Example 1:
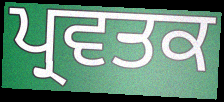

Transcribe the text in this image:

ਪ੍ਰਵਤਕ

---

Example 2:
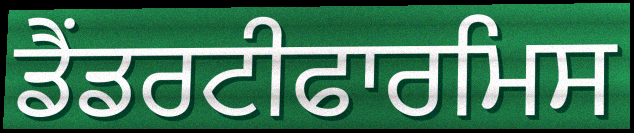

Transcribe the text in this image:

ਡੈਂਡਰਟੀਫਾਰਮਿਸ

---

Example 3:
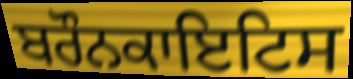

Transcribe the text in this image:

ਬਰੌਨਕਾਇਟਿਸ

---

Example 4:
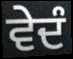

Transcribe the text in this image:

ਵੇਦੰ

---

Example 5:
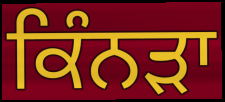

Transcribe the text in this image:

ਕਿੰਨੜਾ